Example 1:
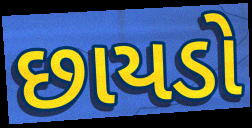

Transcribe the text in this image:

છાયડો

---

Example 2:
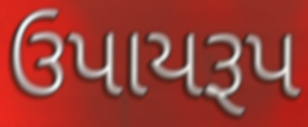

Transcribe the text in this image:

ઉપાયરૂપ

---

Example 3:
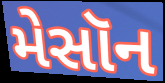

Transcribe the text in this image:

મેસૉન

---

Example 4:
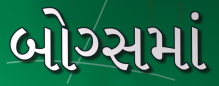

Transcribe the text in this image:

બોગ્સમાં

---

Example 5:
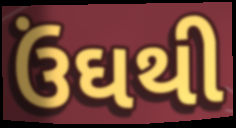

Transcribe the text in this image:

ઉંઘથી